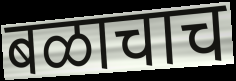
बळाचाच